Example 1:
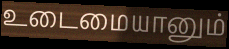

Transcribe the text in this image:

உடைமையானும்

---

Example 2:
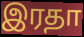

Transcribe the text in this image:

இரதா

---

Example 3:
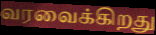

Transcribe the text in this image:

வரவைக்கிறது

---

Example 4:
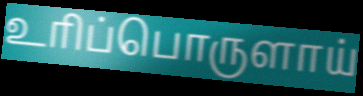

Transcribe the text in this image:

உரிப்பொருளாய்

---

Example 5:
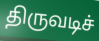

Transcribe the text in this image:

திருவடிச்